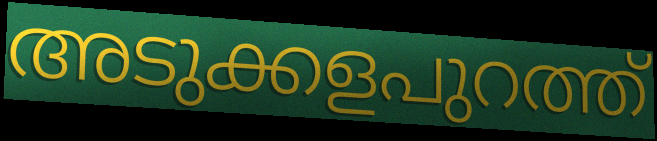
അടുക്കളപുറത്ത്